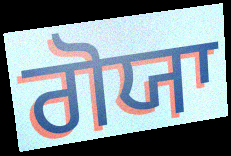
ਗੋਯਾ